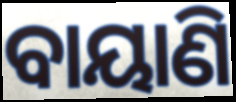
ବାୟାଣି